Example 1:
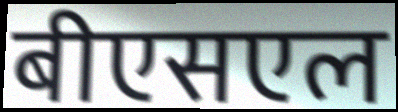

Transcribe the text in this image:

बीएसएल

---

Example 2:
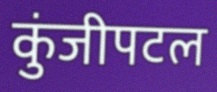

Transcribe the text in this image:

कुंजीपटल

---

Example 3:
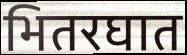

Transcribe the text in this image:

भितरघात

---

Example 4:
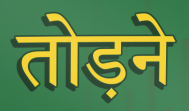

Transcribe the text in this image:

तोड़ने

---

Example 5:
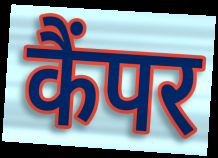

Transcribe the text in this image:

कैंपर